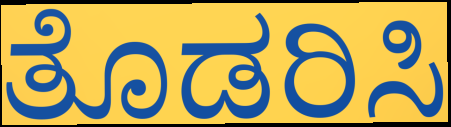
ತೊಡರಿಸಿ